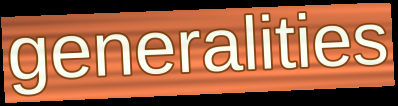
generalities